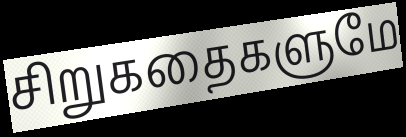
சிறுகதைகளுமே